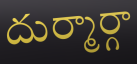
దుర్మార్గా